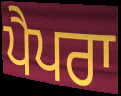
ਪੈਪਰਾ